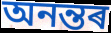
অনন্তৰ